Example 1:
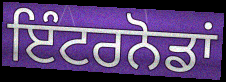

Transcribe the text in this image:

ਇੰਟਰਨੋਡਾਂ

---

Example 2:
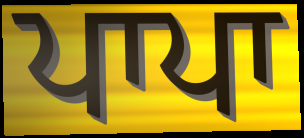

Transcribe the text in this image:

ਪਾਪਾ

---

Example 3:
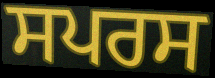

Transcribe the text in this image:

ਸਪਰਸ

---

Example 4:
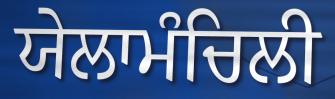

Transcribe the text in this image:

ਯੇਲਾਮੰਚਿਲੀ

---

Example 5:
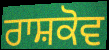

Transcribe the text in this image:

ਰਾਸ਼ਕੋਵ